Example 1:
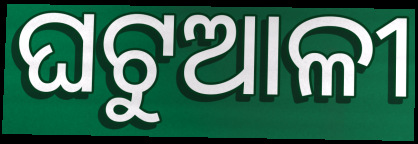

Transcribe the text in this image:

ଘଟୁଆଳୀ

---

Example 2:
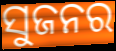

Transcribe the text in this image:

ସୁଜନର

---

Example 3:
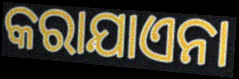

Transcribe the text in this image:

କରାଯାଏନା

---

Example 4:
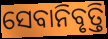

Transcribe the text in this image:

ସେବାନିବୃତ୍ତି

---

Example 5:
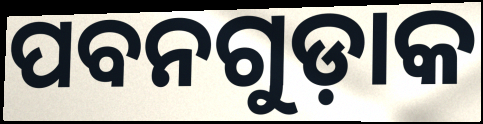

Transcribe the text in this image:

ପବନଗୁଡ଼ାକ